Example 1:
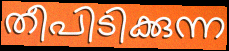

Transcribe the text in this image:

തീപിടിക്കുന്ന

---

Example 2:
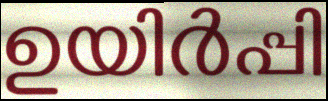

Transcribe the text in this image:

ഉയിർപ്പി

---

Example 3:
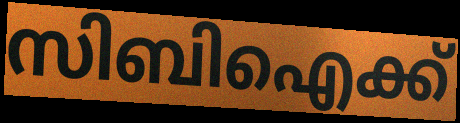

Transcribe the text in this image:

സിബിഐക്ക്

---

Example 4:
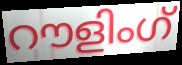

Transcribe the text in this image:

റൗളിംഗ്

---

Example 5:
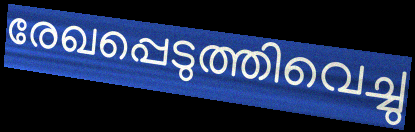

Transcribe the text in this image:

രേഖപ്പെടുത്തിവെച്ചു